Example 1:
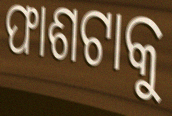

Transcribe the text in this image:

ଫାଶଟାକୁ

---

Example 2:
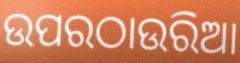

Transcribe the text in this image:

ଉପରଠାଉରିଆ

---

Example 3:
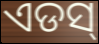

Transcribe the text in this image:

ଏଡସ୍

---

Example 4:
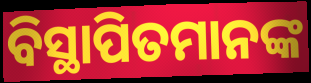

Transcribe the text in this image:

ବିସ୍ଥାପିତମାନଙ୍କ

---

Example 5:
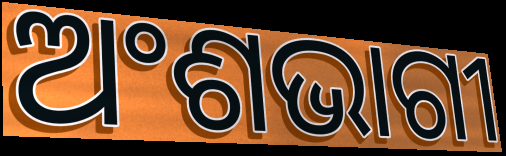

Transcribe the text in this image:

ଅଂଶଭାଗୀ